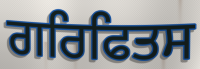
ਗਰਿਫਿਤਸ